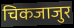
चिकजाजुर